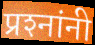
प्रश्नांनी